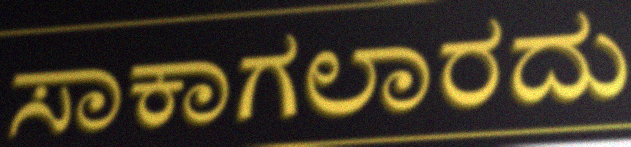
ಸಾಕಾಗಲಾರದು